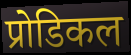
प्रोडिकल